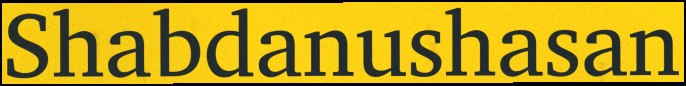
Shabdanushasan